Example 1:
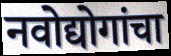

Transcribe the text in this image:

नवोद्योगांचा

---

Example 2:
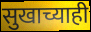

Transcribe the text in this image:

सुखाच्याही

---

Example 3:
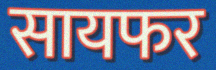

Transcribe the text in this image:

सायफर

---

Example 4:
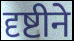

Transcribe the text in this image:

दृष्टीने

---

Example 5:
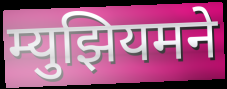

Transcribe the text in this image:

म्युझियमने